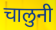
चालुनी